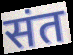
संत